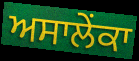
ਅਸਾਲੇਂਕਾ